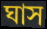
ঘাস